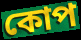
কোপ